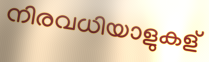
നിരവധിയാളുകള്